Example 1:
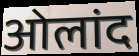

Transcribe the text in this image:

ओलांद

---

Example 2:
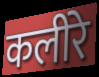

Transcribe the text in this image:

कलीरे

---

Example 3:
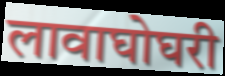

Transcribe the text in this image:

लावाघोघरी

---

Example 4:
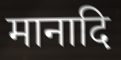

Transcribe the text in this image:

मानादि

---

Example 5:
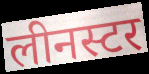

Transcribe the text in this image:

लीनस्टर